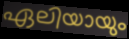
ഏലിയായും